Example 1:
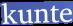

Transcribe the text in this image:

kunte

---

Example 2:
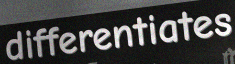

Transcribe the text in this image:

differentiates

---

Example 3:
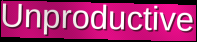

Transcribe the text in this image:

Unproductive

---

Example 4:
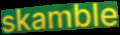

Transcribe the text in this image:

skamble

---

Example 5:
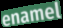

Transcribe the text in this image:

enamel